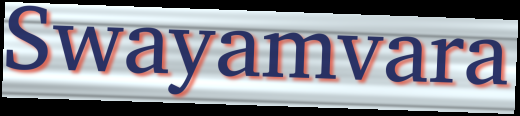
Swayamvara